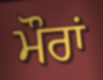
ਮੌਰਾਂ